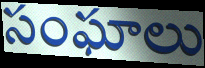
సంఘాలు